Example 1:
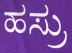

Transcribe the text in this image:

ಹಸ್ರು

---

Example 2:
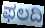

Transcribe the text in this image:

ಫಲದಿ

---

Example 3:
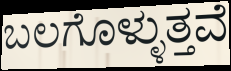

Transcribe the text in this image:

ಬಲಗೊಳ್ಳುತ್ತವೆ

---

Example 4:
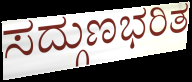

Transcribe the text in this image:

ಸದ್ಗುಣಭರಿತ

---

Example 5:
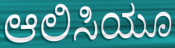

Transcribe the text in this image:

ಆಲಿಸಿಯೂ